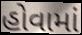
હોવામાં